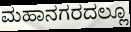
ಮಹಾನಗರದಲ್ಲೂ